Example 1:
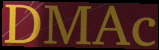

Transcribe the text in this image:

DMAc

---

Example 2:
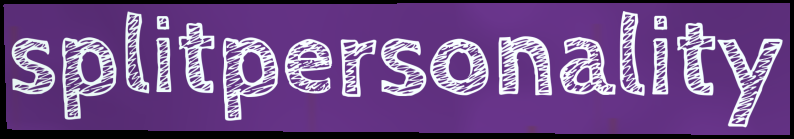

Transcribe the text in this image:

splitpersonality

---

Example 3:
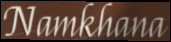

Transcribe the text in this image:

Namkhana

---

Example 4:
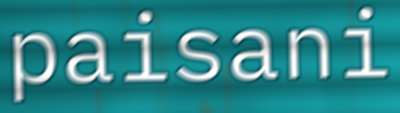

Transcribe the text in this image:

paisani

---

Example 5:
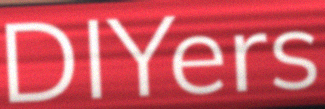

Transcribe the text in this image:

DIYers